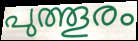
പുത്തൂരം